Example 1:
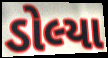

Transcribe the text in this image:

ડોલ્યા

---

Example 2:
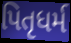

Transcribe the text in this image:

પિતૃધર્મ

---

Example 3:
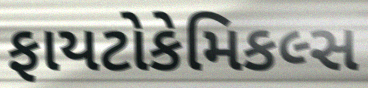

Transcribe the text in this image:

ફાયટોકેમિકલ્સ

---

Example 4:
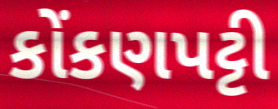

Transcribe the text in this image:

કોંકણપટ્ટી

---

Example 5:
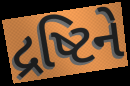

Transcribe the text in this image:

દ્રષ્ટિને